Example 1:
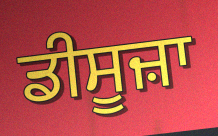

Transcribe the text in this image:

ਡੀਸੂਜ਼ਾ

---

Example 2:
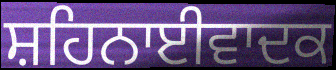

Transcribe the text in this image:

ਸ਼ਹਿਨਾਈਵਾਦਕ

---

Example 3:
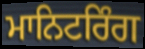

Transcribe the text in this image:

ਮਾਨਿਟਰਿੰਗ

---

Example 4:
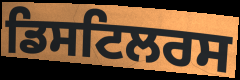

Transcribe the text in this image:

ਡਿਸਟਿਲਰਸ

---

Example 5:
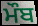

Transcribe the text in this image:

ਮੌਬ